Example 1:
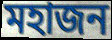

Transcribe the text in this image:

মহাজন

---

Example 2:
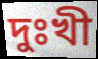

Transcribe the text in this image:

দুঃখী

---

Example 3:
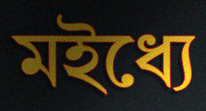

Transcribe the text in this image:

মইধ্যে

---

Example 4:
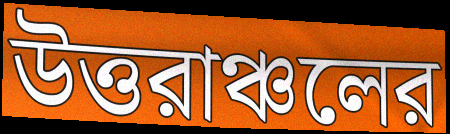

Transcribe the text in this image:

উত্তরাঞ্চলের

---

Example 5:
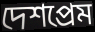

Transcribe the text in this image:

দেশপ্রেম